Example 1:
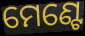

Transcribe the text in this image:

ମେଣ୍ଟେ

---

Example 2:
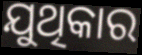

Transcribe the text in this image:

ଯୁଥିକାର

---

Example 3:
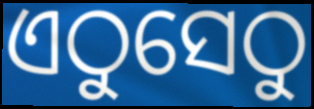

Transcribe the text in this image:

ଏଠୁସେଠୁ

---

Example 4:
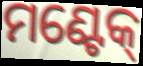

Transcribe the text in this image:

ମଣ୍ଟେକ୍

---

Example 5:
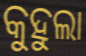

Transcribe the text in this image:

କୁହୁଲା